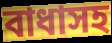
বাধাসহ